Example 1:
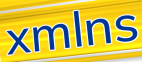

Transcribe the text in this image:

xmlns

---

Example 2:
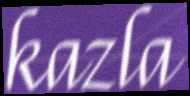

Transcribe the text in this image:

kazla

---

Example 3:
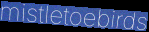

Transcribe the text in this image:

mistletoebirds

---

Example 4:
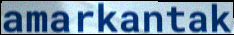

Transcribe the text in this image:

amarkantak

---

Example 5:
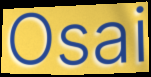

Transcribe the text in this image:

Osai